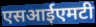
एसआईएमटी